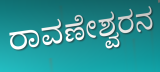
ರಾವಣೇಶ್ವರನ